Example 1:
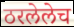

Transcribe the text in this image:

ठरलेलेच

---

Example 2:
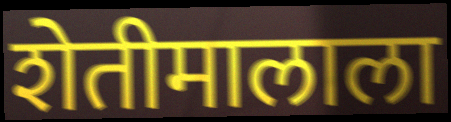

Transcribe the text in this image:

शेतीमालाला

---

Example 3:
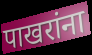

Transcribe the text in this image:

पाखरांना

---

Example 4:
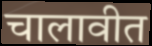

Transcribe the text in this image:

चालावीत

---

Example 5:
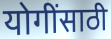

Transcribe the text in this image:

योगींसाठी